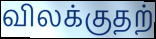
விலக்குதற்